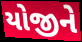
યોજીને